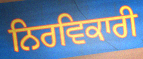
ਨਿਰਵਿਕਾਰੀ